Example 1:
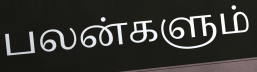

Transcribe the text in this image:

பலன்களும்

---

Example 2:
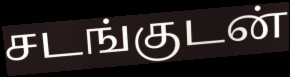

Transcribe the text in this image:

சடங்குடன்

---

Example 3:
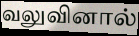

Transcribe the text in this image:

வலுவினால்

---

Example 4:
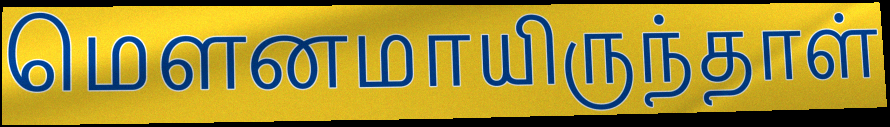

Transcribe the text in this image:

மௌனமாயிருந்தாள்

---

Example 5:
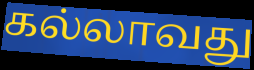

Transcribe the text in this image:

கல்லாவது